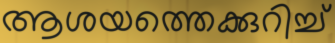
ആശയത്തെക്കുറിച്ച്